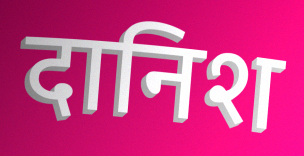
दानिश